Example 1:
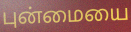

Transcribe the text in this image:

புன்மையை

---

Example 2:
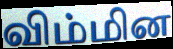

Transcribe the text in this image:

விம்மின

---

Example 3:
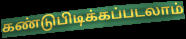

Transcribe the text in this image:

கண்டுபிடிக்கப்படலாம்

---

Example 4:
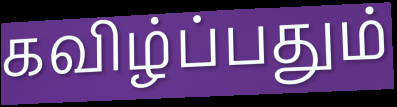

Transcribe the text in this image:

கவிழ்ப்பதும்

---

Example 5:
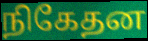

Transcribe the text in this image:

நிகேதன